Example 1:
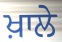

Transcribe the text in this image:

ਖ਼ਾਲੇ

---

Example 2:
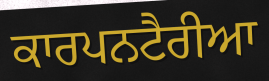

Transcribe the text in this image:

ਕਾਰਪਨਟੈਰੀਆ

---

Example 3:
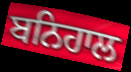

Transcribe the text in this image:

ਬਨਿਹਾਲ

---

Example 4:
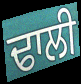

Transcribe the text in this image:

ਢਾਲੀ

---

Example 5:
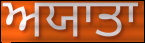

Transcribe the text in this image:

ਅਯਾਤਾ